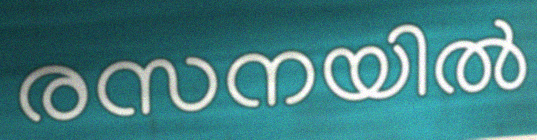
രസനയിൽ